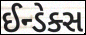
ઈન્ડેક્સ